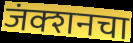
जंक्शनचा